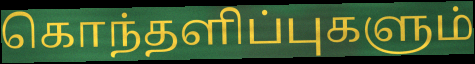
கொந்தளிப்புகளும்